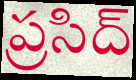
ప్రసిద్